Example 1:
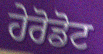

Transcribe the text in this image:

ਹੇਰੋਡੋਟ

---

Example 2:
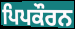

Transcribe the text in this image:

ਪਿਪਕੌਰਨ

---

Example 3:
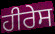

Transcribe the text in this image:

ਹੀਰੇਸ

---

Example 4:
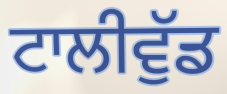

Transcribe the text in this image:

ਟਾਲੀਵੁੱਡ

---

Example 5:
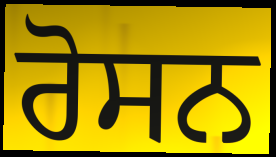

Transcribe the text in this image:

ਰੋਸਨ